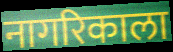
नागरिकाला